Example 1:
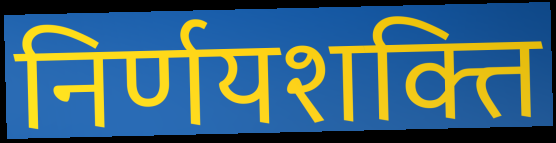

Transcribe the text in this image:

निर्णयशक्ति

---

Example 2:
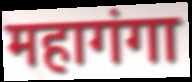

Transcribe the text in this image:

महागंगा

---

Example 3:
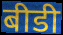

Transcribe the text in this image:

बीडी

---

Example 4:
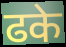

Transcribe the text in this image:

ढके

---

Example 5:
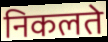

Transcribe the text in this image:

निकलते